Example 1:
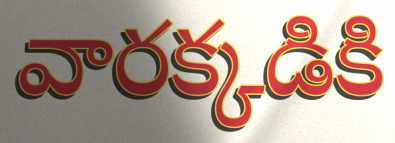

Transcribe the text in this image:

వారక్కడికి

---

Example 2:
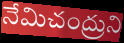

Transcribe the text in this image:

నేమిచంద్రుని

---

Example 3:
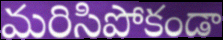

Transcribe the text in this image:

మరిసిపోకండా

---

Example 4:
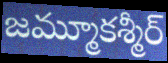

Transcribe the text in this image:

జమ్మూకశ్మీర్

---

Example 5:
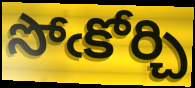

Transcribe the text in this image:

సోఁకోర్చి